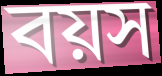
বয়স